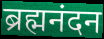
ब्रह्मनंदन